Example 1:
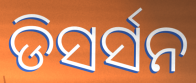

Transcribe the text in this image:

ଡିସର୍ସନ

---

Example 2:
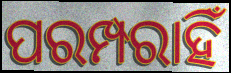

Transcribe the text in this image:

ପରମ୍ପରାହିଁ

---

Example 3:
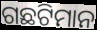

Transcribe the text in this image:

ଗଛଟିମାନ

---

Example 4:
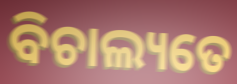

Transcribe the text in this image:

ବିଚାଲ୍ୟତେ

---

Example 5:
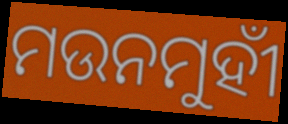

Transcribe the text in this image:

ମଉନମୁହୀଁ